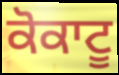
ਕੋਕਾਟੂ